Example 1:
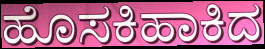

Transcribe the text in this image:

ಹೊಸಕಿಹಾಕಿದ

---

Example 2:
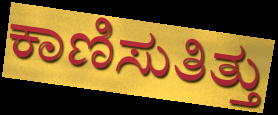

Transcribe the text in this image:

ಕಾಣಿಸುತಿತ್ತು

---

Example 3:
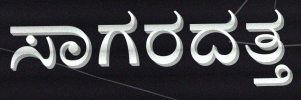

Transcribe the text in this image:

ಸಾಗರದತ್ತ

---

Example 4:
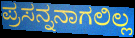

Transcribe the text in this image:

ಪ್ರಸನ್ನನಾಗಲಿಲ್ಲ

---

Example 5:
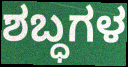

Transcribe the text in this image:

ಶಬ್ಧಗಳ